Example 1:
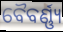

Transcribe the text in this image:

ବୈବର୍ଣ୍ଣ୍ୟ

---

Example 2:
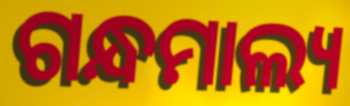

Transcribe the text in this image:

ଗନ୍ଧମାଲ୍ୟ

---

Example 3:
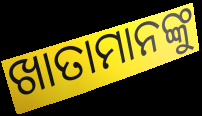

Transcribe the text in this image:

ଖାତାମାନଙ୍କୁ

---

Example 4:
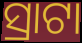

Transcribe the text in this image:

ସ୍ରାଟା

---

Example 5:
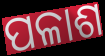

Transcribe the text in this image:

ପଳାଶ